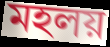
মহলয়